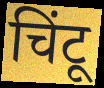
चिंटू